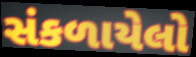
સંકળાયેલો